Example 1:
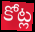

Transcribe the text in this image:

కోట్ల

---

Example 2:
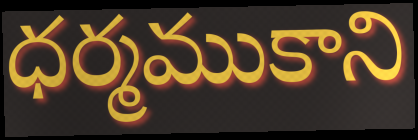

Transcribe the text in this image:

ధర్మముకాని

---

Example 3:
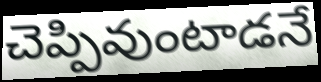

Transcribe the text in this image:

చెప్పివుంటాడనే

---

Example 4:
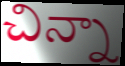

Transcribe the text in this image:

చిన్నా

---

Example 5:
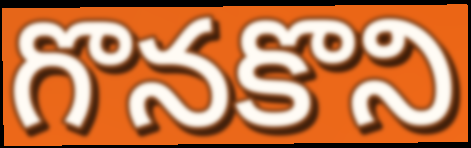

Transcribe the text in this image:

గొనకొని